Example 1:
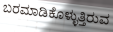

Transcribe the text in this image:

ಬರಮಾಡಿಕೊಳ್ಳುತ್ತಿರುವ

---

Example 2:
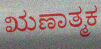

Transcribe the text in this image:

ಋಣಾತ್ಮಕ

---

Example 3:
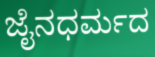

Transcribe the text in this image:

ಜೈನಧರ್ಮದ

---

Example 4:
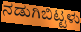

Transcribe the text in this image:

ನಡುಗಿಬಿಟ್ಟಳು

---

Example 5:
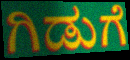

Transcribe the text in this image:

ಗಿಡುಗೆ